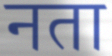
नता